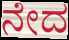
ನೇದ